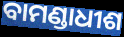
ବାମଣ୍ଡାଧୀଶ